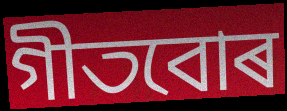
গীতবোৰ